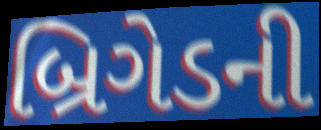
બ્રિગેડની